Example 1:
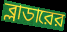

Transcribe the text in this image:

ব্লাডারের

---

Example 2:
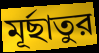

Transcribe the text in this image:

মূর্ছাতুর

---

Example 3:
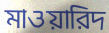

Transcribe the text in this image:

মাওয়ারিদ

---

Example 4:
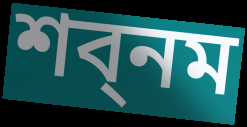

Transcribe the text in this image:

শব্নম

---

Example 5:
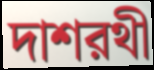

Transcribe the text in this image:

দাশরথী